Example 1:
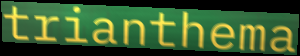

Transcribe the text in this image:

trianthema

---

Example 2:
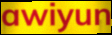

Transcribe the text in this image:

awiyun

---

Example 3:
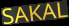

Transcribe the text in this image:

SAKAL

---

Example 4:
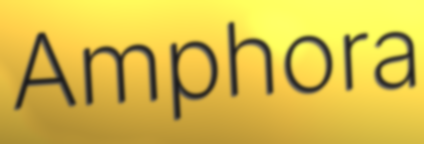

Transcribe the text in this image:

Amphora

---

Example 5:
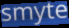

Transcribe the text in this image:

smyte